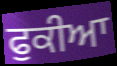
ਫੁਕੀਆ